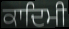
ਕਾਦਿਮੀ